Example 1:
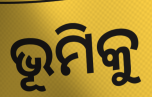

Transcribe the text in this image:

ଭୂମିକୁ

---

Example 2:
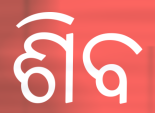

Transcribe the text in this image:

ଶିବ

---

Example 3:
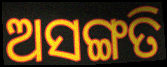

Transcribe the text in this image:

ଅସଙ୍ଗତି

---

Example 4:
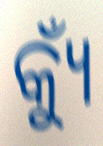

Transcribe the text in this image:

କ୍ୟୁଁ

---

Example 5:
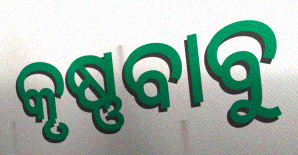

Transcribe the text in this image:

କୃଷ୍ଣବାବୁ